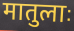
मातुलाः